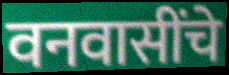
वनवासींचे